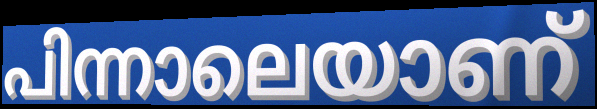
പിന്നാലെയാണ്